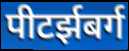
पीटर्झबर्ग